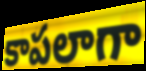
కాపలాగా